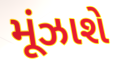
મૂંઝાશે